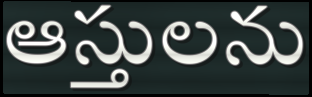
ఆస్తులను